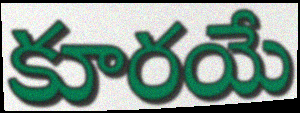
కూరయే